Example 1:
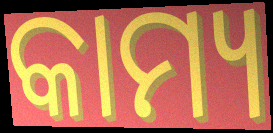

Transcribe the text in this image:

କାମ୍ୟ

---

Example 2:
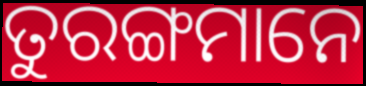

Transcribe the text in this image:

ତୁରଙ୍ଗମାନେ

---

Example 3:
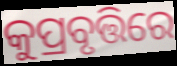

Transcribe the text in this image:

କୁପ୍ରବୃତ୍ତିରେ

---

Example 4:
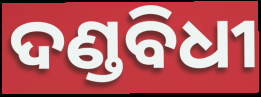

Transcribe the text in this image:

ଦଣ୍ଡବିଧୀ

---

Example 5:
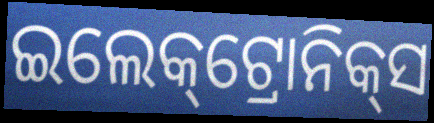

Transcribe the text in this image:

ଇଲେକ୍‌ଟ୍ରୋନିକ୍‌ସ